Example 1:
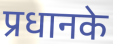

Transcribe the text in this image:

प्रधानके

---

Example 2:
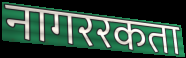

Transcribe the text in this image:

नागररकता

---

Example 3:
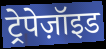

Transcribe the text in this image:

ट्रेपेज़ॉइड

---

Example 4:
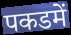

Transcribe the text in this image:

पकडमें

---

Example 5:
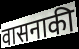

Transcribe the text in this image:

वासनाकी